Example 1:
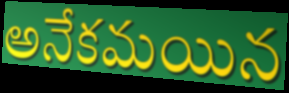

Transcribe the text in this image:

అనేకమయిన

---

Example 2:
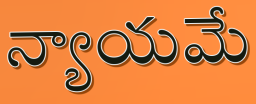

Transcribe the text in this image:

న్యాయమే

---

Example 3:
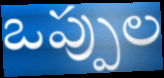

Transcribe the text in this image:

ఒప్పుల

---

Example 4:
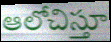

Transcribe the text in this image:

ఆలోచిస్తూ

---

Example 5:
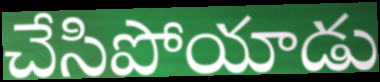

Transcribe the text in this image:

చేసిపోయాడు